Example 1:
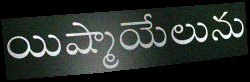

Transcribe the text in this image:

యిష్మాయేలును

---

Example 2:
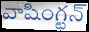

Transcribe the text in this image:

వాషింగ్టన్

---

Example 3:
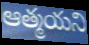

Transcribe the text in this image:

ఆత్మయని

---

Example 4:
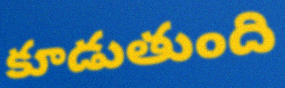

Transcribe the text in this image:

కూడుతుంది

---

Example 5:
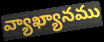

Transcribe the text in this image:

వ్యాఖ్యానము